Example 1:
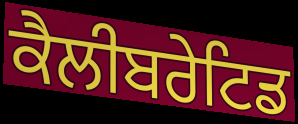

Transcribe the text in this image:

ਕੈਲੀਬਰੇਟਿਡ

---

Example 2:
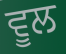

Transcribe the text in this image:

ਵੂਲ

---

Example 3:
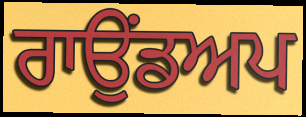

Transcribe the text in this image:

ਰਾਉਂਡਅਪ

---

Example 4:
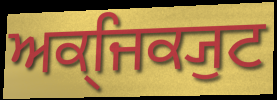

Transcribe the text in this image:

ਅਕ੍ਜਿਕ੍ਯੁਟ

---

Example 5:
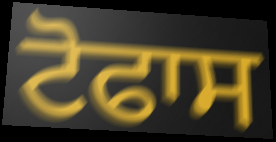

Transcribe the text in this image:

ਟੋਫਾਸ